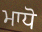
ਮਾਧੋ